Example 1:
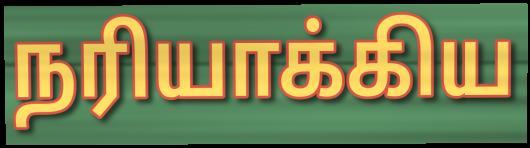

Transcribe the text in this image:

நரியாக்கிய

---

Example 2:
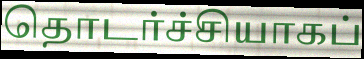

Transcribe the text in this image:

தொடர்ச்சியாகப்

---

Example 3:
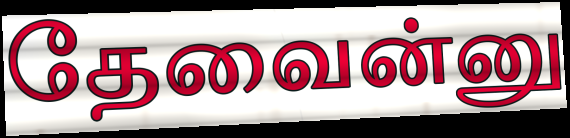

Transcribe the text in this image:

தேவைன்னு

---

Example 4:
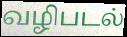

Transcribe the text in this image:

வழிபடல்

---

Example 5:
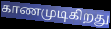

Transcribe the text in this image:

காணமுடிகிறது